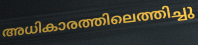
അധികാരത്തിലെത്തിച്ചു